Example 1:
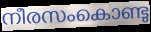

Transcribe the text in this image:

നീരസംകൊണ്ടു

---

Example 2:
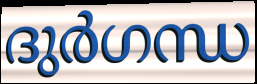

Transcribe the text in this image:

ദുർഗന്ധ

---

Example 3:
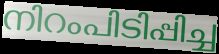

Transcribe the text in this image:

നിറംപിടിപ്പിച്ച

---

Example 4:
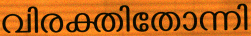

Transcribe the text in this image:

വിരക്തിതോന്നി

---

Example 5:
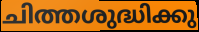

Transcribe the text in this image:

ചിത്തശുദ്ധിക്കു